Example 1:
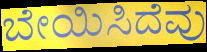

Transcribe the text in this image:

ಬೇಯಿಸಿದೆವು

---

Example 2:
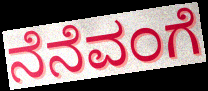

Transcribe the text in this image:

ನೆನೆವಂಗೆ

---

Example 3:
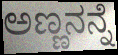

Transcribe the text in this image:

ಅಣ್ಣನನ್ನೆ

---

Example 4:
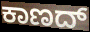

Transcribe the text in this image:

ಕಾಣದ್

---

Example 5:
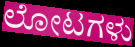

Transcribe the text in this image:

ಲೋಟಗಳು